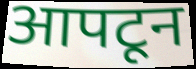
आपटून